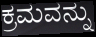
ಕ್ರಮವನ್ನು